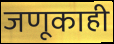
जणूकाही